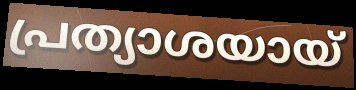
പ്രത്യാശയായ്